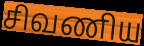
சிவணிய